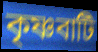
কৃষ্ণবাটি